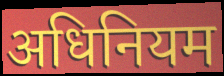
अधिनियम